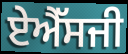
ਏਐੱਸਜੀ